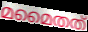
മമൈതത്